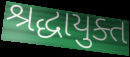
શ્રદ્ધાયુક્ત